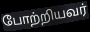
போற்றியவர்